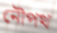
নৌপথ